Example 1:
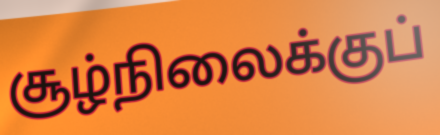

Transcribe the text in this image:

சூழ்நிலைக்குப்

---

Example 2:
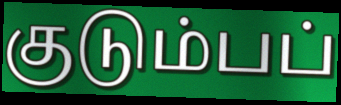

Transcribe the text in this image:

குடும்பப்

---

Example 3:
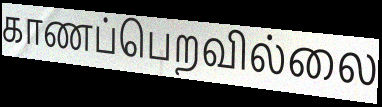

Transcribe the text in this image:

காணப்பெறவில்லை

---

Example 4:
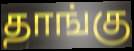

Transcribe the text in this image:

தாங்கு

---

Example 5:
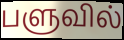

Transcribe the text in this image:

பளுவில்